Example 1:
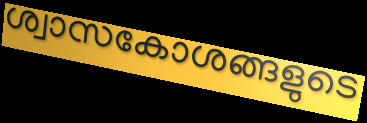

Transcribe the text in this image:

ശ്വാസകോശങ്ങളുടെ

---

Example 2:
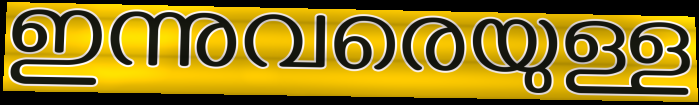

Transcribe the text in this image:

ഇന്നുവരെയുള്ള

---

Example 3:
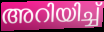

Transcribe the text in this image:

അറിയിച്ച്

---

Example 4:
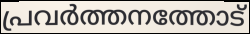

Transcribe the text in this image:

പ്രവർത്തനത്തോട്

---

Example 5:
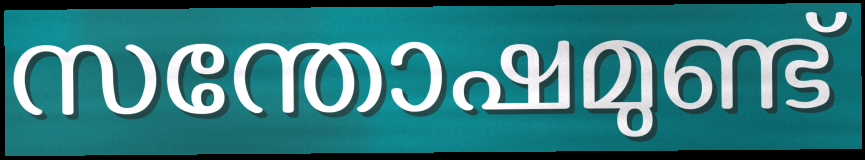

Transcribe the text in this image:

സന്തോഷമുണ്ട്